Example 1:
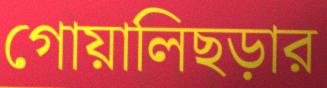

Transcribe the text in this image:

গোয়ালিছড়ার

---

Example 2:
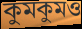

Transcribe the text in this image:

কুমকুমও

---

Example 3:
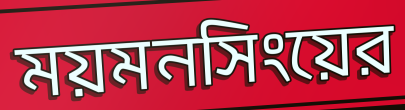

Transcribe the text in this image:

ময়মনসিংয়ের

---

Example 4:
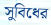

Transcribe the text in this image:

সুবিধের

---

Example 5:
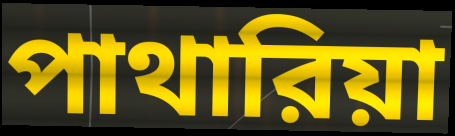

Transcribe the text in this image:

পাথারিয়া